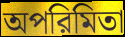
অপরিমিতা